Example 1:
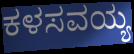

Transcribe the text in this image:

ಕಳಸವಯ್ಯ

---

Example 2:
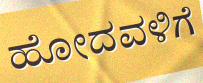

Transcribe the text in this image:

ಹೋದವಳಿಗೆ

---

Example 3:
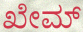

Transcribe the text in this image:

ಖೇಮ್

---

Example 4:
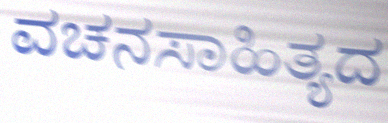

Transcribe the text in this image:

ವಚನಸಾಹಿತ್ಯದ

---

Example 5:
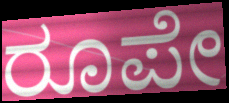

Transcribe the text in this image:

ರೂಪೇ